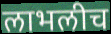
लाभलीच